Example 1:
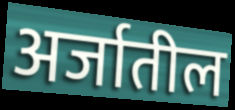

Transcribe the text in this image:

अर्जातील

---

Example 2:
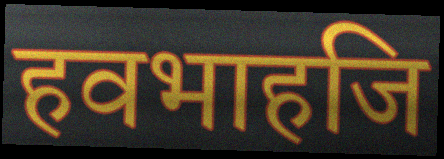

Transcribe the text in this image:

हवभाहजि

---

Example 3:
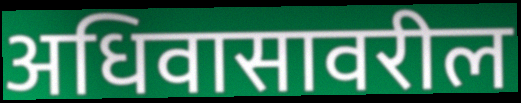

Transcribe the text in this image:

अधिवासावरील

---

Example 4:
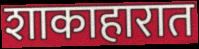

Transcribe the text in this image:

शाकाहारात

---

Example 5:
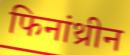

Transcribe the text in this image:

फिनांथ्रीन